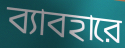
ব্যাবহারে